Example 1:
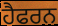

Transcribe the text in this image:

ਹੈਫਰਨ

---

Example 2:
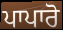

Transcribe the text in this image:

ਪਾਪਾਰੋ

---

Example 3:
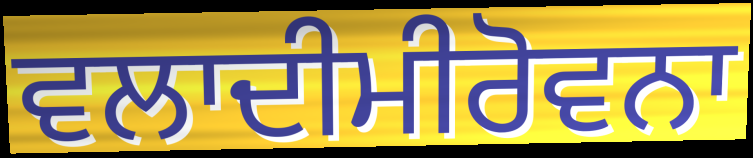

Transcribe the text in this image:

ਵਲਾਦੀਮੀਰੋਵਨਾ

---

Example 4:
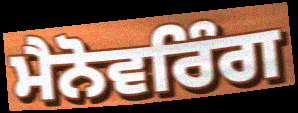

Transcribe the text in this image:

ਮੈਨੋਵਰਿੰਗ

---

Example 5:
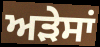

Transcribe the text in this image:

ਅੜੇਸਾਂ